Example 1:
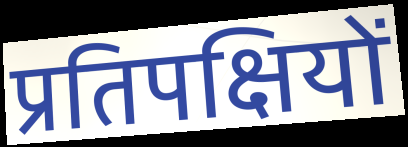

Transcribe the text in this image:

प्रतिपक्षियों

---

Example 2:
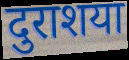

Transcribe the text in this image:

दुराशया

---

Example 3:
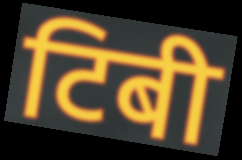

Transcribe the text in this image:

टिबी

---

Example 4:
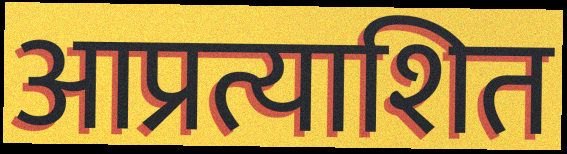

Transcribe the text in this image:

आप्रत्याशित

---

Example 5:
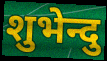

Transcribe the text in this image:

शुभेन्दु